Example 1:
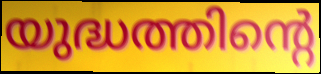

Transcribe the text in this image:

യുദ്ധത്തിന്റെ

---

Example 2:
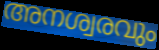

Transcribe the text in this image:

അനശ്വരവും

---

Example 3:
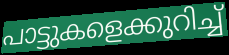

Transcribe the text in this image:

പാട്ടുകളെക്കുറിച്ച്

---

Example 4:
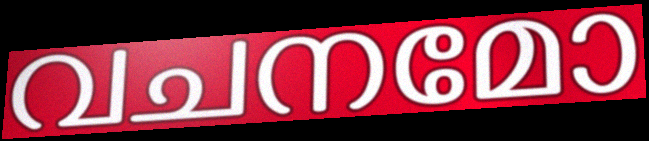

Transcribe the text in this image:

വചനമോ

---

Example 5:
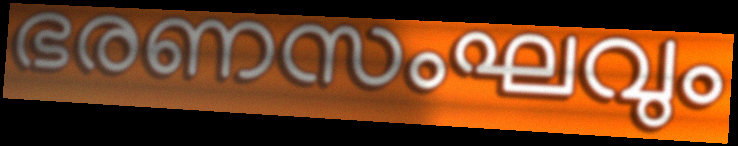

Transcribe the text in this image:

ഭരണസംഘവും